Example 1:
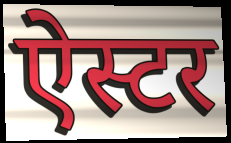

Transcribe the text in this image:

ऐस्टर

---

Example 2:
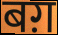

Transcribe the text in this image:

बग़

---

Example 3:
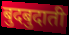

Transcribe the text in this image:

बुदबुदाती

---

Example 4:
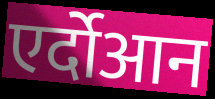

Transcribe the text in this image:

एर्दोआन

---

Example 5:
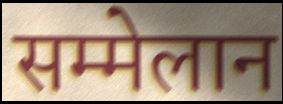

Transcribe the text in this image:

सम्मेलान